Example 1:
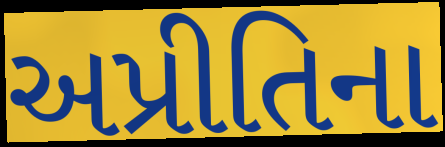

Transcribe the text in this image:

અપ્રીતિના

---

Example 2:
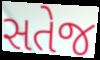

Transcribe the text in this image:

સતેજ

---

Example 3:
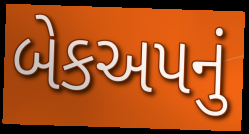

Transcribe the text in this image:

બેકઅપનું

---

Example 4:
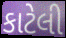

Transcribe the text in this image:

કાટેલી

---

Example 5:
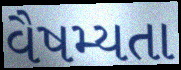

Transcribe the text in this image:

વૈષમ્યતા